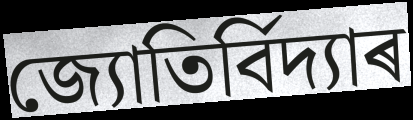
জ্যোতিৰ্বিদ্যাৰ